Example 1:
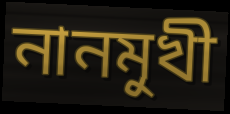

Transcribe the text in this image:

নানমুখী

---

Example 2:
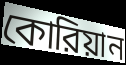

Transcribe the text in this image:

কোরিয়ান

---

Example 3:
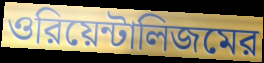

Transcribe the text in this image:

ওরিয়েন্টালিজমের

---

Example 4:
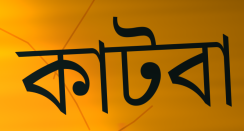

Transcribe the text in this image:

কাটবা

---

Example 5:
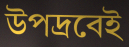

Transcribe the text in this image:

উপদ্রবেই